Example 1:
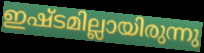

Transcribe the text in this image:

ഇഷ്ടമില്ലായിരുന്നു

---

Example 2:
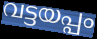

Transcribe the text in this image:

വട്ടയപ്പം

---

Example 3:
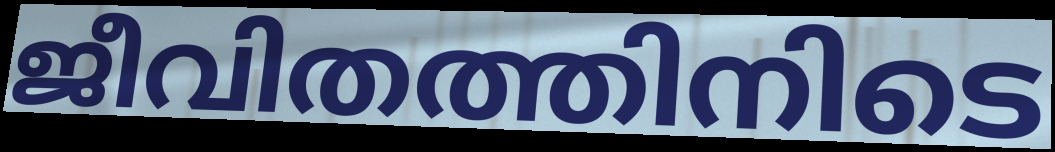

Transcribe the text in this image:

ജീവിതത്തിനിടെ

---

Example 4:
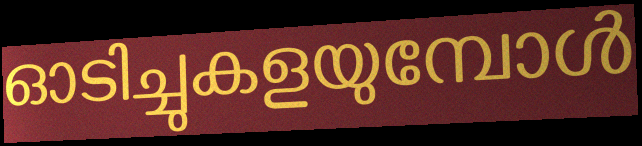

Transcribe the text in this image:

ഓടിച്ചുകളയുമ്പോൾ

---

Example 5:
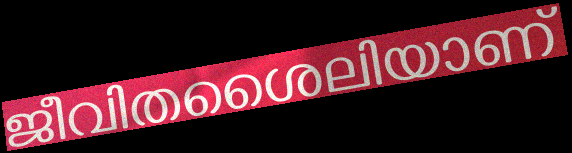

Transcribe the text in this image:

ജീവിതശൈലിയാണ്